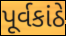
પૂર્વકાંઠે